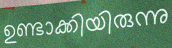
ഉണ്ടാക്കിയിരുന്നു